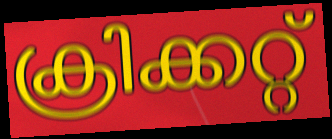
ക്രിക്കറ്റ്